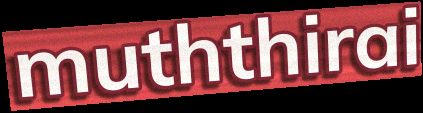
muththirai